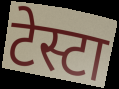
टेस्टा